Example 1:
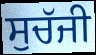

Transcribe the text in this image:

ਸੁਚੱਜੀ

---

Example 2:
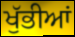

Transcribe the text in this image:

ਖੁੱਭੀਆਂ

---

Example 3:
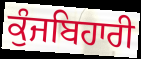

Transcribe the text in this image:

ਕੁੰਜਬਿਹਾਰੀ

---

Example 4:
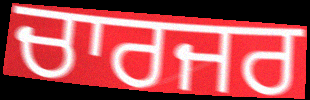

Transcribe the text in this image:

ਚਾਰਜਰ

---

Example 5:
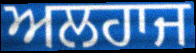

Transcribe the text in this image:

ਅਲਹਾਜ